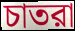
চাতরা